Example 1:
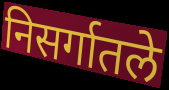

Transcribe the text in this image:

निसर्गातले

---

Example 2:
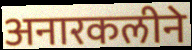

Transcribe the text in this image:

अनारकलीने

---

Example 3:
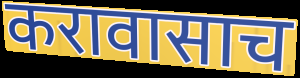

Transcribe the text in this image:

करावासाच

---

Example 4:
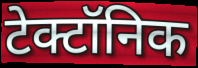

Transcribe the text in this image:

टेक्टॉनिक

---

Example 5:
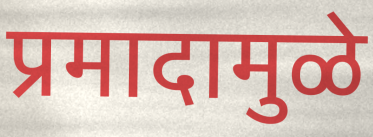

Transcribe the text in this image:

प्रमादामुळे